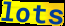
lots